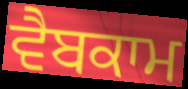
ਵੈਬਕਾਮ